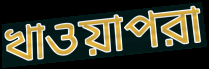
খাওয়াপরা